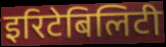
इरिटेबिलिटी